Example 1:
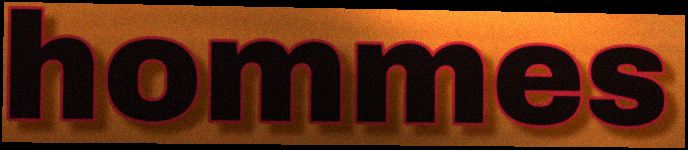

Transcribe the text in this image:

hommes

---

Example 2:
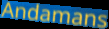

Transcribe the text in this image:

Andamans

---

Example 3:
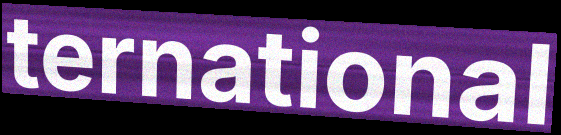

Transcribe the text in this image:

ternational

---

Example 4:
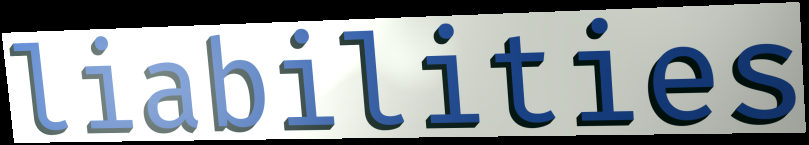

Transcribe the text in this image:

liabilities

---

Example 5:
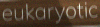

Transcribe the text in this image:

eukaryotic